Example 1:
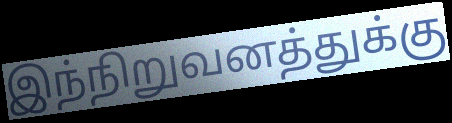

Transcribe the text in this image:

இந்நிறுவனத்துக்கு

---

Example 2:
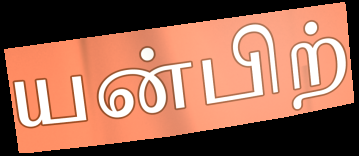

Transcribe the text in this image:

யன்பிற்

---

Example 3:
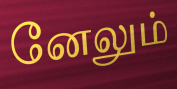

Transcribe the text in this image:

னேலும்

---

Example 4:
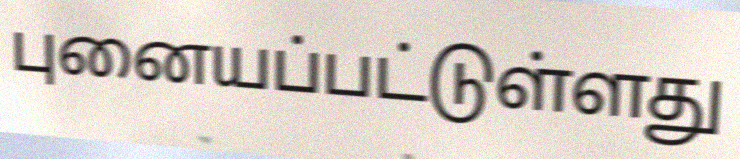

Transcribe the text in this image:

புனையப்பட்டுள்ளது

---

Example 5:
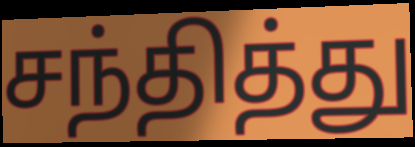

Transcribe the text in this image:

சந்தித்து